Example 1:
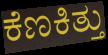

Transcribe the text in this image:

ಕೆಣಕಿತ್ತು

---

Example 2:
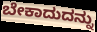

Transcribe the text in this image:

ಬೇಕಾದುದನ್ನು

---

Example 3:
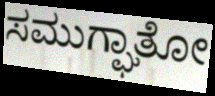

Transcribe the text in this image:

ಸಮುಗ್ಘಾತೋ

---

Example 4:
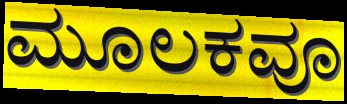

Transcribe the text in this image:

ಮೂಲಕವೂ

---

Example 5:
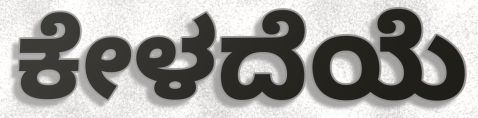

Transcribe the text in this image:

ಕೇಳದೆಯೆ